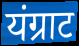
यंग्राट